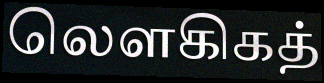
லௌகிகத்